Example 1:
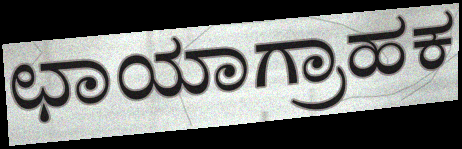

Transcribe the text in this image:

ಛಾಯಾಗ್ರಾಹಕ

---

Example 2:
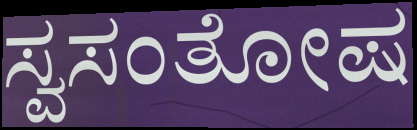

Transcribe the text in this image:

ಸ್ವಸಂತೋಷ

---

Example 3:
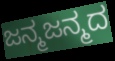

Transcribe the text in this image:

ಜನ್ಮಜನ್ಮದ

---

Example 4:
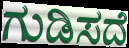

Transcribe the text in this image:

ಗುಡಿಸದೆ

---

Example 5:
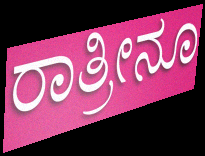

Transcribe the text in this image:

ರಾತ್ರೀನೂ